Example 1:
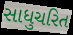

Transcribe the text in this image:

સાધુચરિત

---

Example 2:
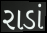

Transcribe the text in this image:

રાડાં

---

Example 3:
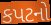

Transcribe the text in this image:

કપટનો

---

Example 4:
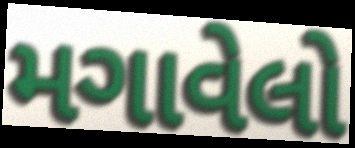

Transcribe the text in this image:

મગાવેલો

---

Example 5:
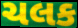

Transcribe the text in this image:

ચલક